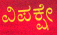
ವಿಪಕ್ಷೇ